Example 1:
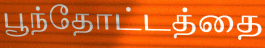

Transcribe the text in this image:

பூந்தோட்டத்தை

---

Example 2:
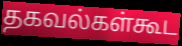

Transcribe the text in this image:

தகவல்கள்கூட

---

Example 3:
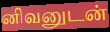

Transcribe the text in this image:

னிவனுடன்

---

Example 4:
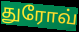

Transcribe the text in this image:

துரோவ்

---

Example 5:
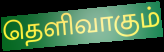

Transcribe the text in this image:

தெளிவாகும்